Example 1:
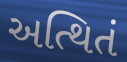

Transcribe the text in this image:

અત્થિતં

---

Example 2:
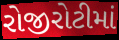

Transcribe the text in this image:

રોજીરોટીમાં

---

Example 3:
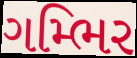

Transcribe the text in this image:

ગમ્ભિર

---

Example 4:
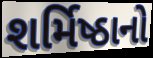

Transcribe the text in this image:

શર્મિષ્ઠાનો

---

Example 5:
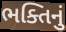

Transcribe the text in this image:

ભક્તિનું